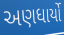
અણધાર્યો